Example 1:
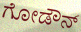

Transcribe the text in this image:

ಗೋಡೌನ್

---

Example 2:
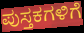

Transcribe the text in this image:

ಪುಸ್ತಕಗಳಿಗೆ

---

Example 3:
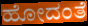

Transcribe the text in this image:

ಹೋದಂತೆ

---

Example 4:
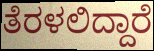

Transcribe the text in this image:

ತೆರಳಲಿದ್ದಾರೆ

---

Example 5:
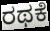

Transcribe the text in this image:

ರಥಕೆ